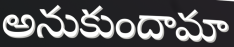
అనుకుందామా